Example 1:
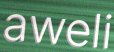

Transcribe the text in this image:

aweli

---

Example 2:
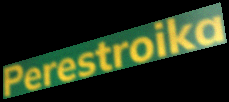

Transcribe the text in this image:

Perestroika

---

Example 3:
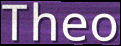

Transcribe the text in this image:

Theo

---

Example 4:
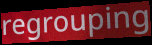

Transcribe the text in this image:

regrouping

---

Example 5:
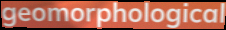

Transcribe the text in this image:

geomorphological